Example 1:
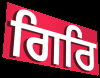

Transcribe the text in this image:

ਗਿਰਿ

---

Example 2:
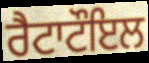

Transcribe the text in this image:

ਰੈਟਾਟੌਇਲ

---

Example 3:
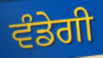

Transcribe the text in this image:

ਵੰਡੇਗੀ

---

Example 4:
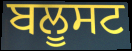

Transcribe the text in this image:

ਬਲੂਸਟ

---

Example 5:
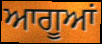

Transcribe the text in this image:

ਆਗੂਆਂ